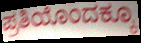
ಪ್ರತಿಯೊಂದಕ್ಕೂ